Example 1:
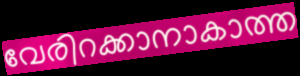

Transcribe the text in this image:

വേരിറക്കാനാകാത്ത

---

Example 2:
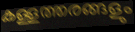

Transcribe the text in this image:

കള്ളത്തരങ്ങളും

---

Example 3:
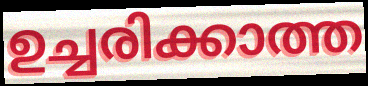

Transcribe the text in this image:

ഉച്ചരിക്കാത്ത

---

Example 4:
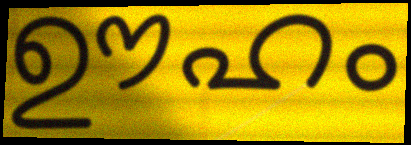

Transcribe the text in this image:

ഊഹം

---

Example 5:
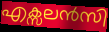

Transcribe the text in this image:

എക്സലൻസി